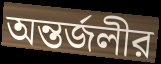
অন্তর্জলীর